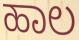
ಹಾಲ